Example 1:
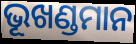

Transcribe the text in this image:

ଭୂଖଣ୍ଡମାନ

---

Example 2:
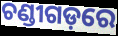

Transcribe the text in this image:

ଚଣ୍ଡୀଗଡ଼ରେ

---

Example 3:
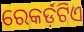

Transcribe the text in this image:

ରେକର୍ଡ଼ଟିଏ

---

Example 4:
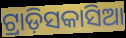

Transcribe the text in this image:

ଟ୍ରାଡ଼ିସକାସିଆ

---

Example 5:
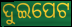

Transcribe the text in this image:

ଦୁଇପେଟ